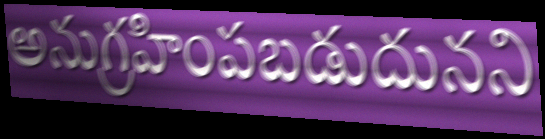
అనుగ్రహింపబడుదునని